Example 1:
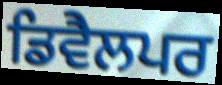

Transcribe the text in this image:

ਡਿਵੈਲਪਰ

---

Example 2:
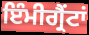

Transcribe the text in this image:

ਇੰਮੀਗ੍ਰੈਂਟਾਂ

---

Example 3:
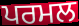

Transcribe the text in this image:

ਪਰਮਲ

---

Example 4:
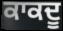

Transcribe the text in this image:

ਕਾਕਦੂ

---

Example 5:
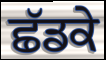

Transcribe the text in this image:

ਛੱਡਕੇ